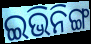
ଇଭିନିଙ୍ଗ